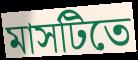
মাসটিতে